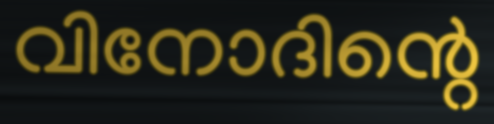
വിനോദിന്റെ